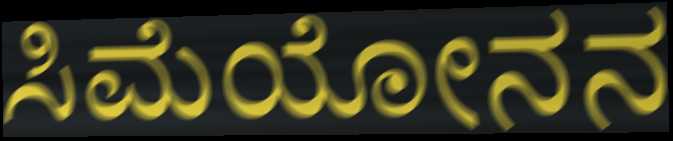
ಸಿಮೆಯೋನನ